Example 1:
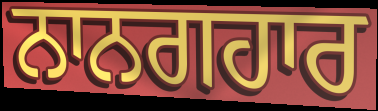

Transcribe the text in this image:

ਨਾਨਗਹਾਰ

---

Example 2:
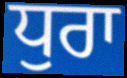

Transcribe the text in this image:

ਧੁਰਾ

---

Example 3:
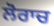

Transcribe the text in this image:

ਲੋਰਾਚ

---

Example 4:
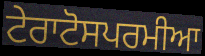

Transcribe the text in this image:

ਟੇਰਾਟੋਸਪਰਮੀਆ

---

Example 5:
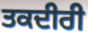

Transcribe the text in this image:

ਤਕਦੀਰੀ